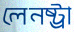
লেনষ্ট্ৰা